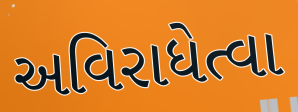
અવિરાધેત્વા